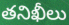
తనిఖీలు